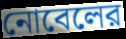
নোবেলের